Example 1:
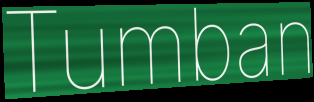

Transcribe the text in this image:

Tumban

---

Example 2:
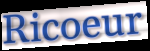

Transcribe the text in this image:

Ricoeur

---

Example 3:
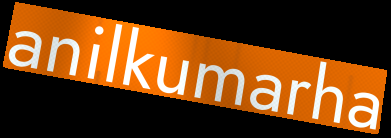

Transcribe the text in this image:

anilkumarha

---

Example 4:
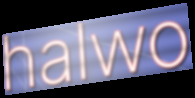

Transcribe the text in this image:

halwo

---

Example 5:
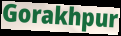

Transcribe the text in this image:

Gorakhpur